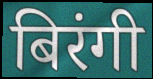
बिरंगी